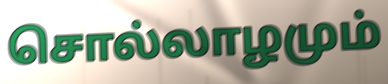
சொல்லாழமும்